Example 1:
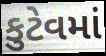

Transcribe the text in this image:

કુટેવમાં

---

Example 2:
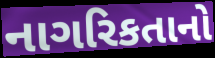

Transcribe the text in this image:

નાગરિકતાનો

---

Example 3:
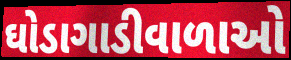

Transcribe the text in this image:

ઘોડાગાડીવાળાઓ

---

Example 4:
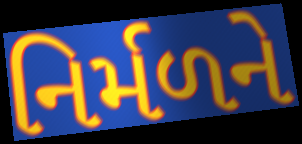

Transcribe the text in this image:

નિર્મળને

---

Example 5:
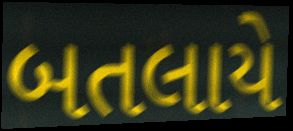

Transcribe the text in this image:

બતલાયે